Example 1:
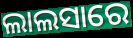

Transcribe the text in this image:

ଲାଲସାରେ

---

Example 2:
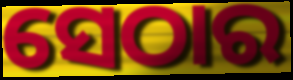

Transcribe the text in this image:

ସେଠାର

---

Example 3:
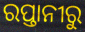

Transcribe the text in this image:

ରପ୍ତାନୀରୁ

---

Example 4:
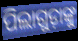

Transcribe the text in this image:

ପିଲାଗୁଡ଼ାଙ୍କୁ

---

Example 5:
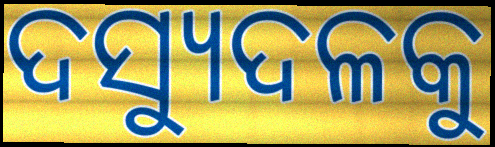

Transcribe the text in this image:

ଦସ୍ୟୁଦଳକୁ